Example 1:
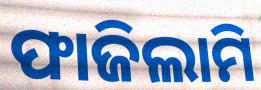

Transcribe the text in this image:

ଫାଜିଲାମି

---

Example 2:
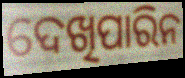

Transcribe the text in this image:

ଦେଖିପାରିନ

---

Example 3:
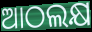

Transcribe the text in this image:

ଆଠଲକ୍ଷ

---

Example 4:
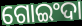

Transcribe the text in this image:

ଗୋଇଂଦା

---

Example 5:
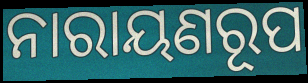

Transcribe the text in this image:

ନାରାୟଣରୂପ